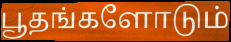
பூதங்களோடும்